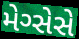
મેગ્સેસે